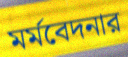
মর্মবেদনার